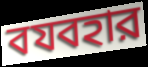
বযবহার